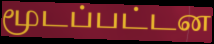
மூடப்பட்டன